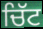
ਚਿੱਟ